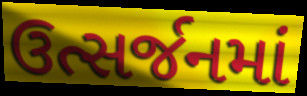
ઉત્સર્જનમાં